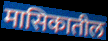
मासिकातील